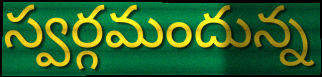
స్వర్గమందున్న